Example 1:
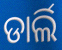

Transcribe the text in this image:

ଡାର୍ଲି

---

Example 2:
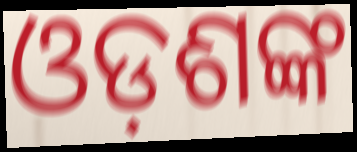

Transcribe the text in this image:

ଓଡ଼ଶଙ୍କ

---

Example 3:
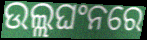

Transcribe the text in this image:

ଉଲ୍ଲଘଂନରେ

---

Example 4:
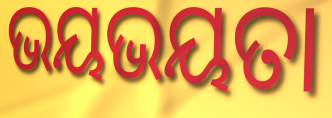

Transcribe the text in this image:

ଭୟଭୟତା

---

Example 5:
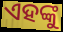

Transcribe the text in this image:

ଏହଙ୍କୁ